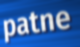
patne